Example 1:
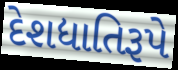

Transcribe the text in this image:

દેશદ્યાતિરૂપે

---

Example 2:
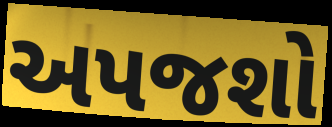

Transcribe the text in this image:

અપજશો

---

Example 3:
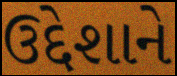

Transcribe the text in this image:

ઉદ્દેશાને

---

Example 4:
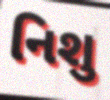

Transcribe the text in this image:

નિશુ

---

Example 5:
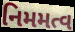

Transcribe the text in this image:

નિમમત્વ